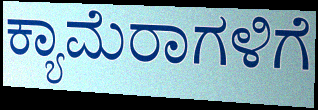
ಕ್ಯಾಮೆರಾಗಳಿಗೆ